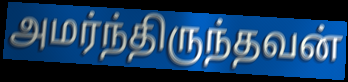
அமர்ந்திருந்தவன்